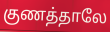
குணத்தாலே